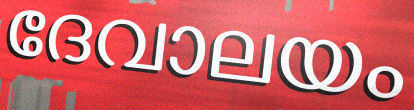
ദേവാലയം